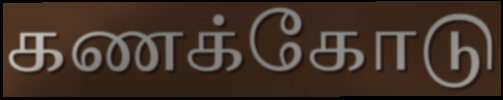
கணக்கோடு